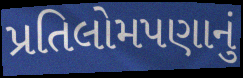
પ્રતિલોમપણાનું